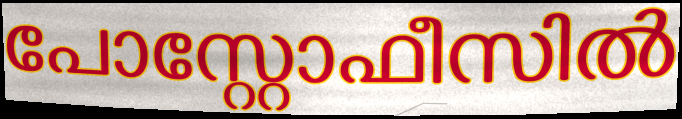
പോസ്റ്റോഫീസിൽ